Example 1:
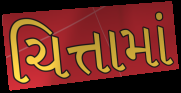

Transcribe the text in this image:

ચિત્તામાં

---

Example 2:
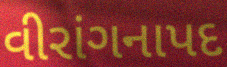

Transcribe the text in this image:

વીરાંગનાપદ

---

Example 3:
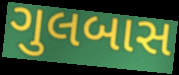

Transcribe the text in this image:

ગુલબાસ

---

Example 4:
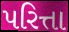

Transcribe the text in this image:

પરિત્તા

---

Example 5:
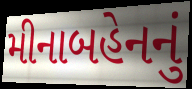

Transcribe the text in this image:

મીનાબહેનનું